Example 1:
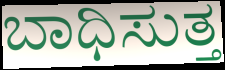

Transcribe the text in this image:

ಬಾಧಿಸುತ್ತ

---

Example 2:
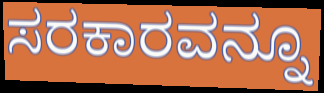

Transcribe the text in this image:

ಸರಕಾರವನ್ನೂ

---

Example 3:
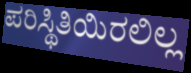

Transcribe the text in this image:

ಪರಿಸ್ಥಿತಿಯಿರಲಿಲ್ಲ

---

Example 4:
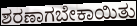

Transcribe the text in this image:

ಶರಣಾಗಬೇಕಾಯಿತು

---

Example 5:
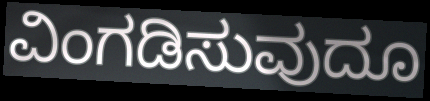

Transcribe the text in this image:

ವಿಂಗಡಿಸುವುದೂ